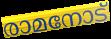
രാമനോട്